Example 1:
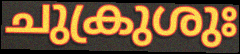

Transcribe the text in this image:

ചുക്രുശുഃ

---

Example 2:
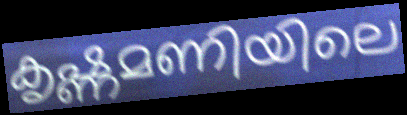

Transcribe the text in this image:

കൃഷ്ണമണിയിലെ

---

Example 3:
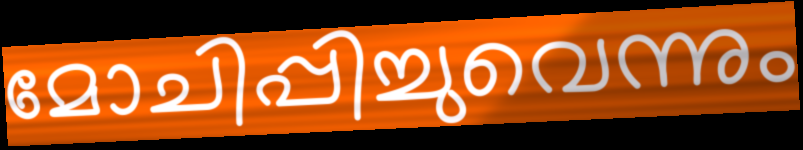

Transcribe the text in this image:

മോചിപ്പിച്ചുവെന്നും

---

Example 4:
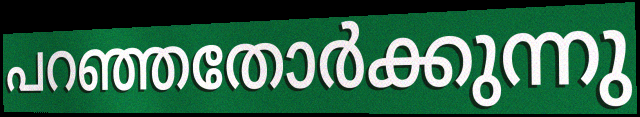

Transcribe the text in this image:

പറഞ്ഞതോർക്കുന്നു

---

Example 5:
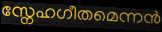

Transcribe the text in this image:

സ്നേഹഗീതമെന്നൻ